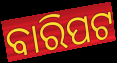
ବାରିପଟ